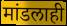
मांडलाही